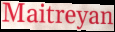
Maitreyan